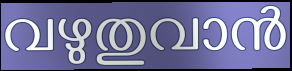
വഴുതുവാൻ